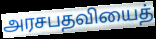
அரசபதவியைத்